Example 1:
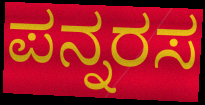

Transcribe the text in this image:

ಪನ್ನರಸ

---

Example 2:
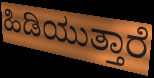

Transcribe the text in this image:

ಹಿಡಿಯುತ್ತಾರೆ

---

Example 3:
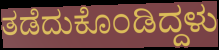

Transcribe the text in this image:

ತಡೆದುಕೊಂಡಿದ್ದಳು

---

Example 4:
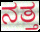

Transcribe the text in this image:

ನತ್ತ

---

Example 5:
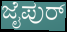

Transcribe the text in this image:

ಜೈಪುರ್